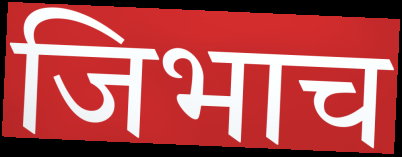
जिभाच